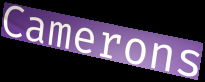
Camerons